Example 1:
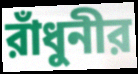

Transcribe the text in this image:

রাঁধুনীর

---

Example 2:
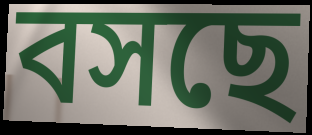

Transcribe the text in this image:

বসছে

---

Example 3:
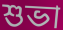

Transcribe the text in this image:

শুভা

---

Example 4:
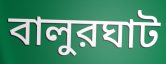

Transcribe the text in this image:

বালুরঘাট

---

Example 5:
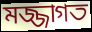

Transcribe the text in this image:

মজ্জাগত